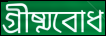
গ্রীষ্মবোধ